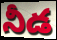
నీడ